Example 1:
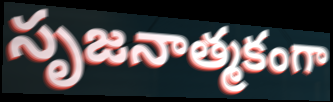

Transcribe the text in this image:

సృజనాత్మకంగా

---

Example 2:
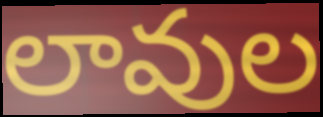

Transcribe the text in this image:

లావుల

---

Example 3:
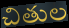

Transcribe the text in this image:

చితుల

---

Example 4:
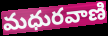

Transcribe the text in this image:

మధురవాణి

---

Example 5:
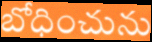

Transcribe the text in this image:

బోధించును